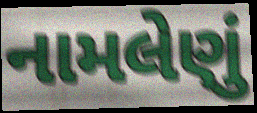
નામલેણું